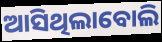
ଆସିଥିଲାବୋଲି